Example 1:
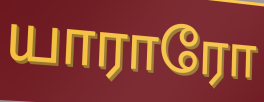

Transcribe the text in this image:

யாராரோ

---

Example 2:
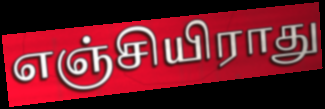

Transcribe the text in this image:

எஞ்சியிராது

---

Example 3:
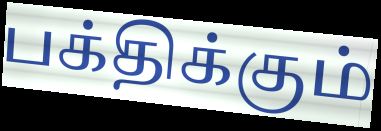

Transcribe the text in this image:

பக்திக்கும்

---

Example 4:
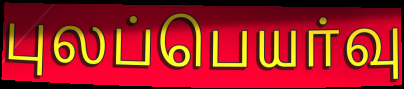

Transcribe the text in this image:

புலப்பெயர்வு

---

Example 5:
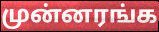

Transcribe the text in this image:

முன்னரங்க